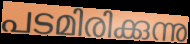
പടമിരിക്കുന്നു